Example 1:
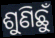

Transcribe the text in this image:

ଶୁଣିଛୁଁ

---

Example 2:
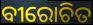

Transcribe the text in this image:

ବୀରୋଚିତ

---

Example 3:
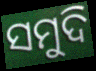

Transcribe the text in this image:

ସମୁଦି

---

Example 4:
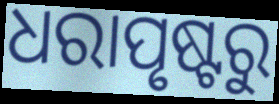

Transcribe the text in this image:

ଧରାପୃଷ୍ଟରୁ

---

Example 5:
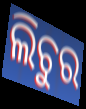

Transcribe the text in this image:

ଲିଚୁର